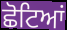
ਛੋਟਿਆਂ